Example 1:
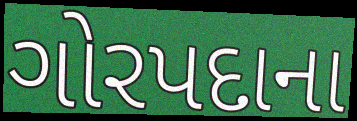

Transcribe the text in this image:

ગોરપદાના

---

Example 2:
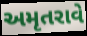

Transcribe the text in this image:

અમૃતરાવે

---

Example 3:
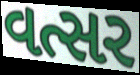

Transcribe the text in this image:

વત્સર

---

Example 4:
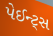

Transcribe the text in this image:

પેઈન્ટ્સ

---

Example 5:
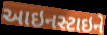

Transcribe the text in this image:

આઇનસ્ટાઇને